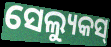
ସେଲ୍ୟୁକସ୍